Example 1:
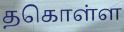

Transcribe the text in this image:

தகொள்ள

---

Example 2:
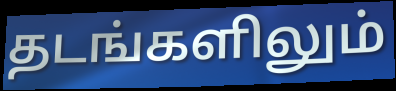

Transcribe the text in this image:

தடங்களிலும்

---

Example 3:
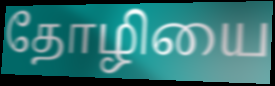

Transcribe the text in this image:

தோழியை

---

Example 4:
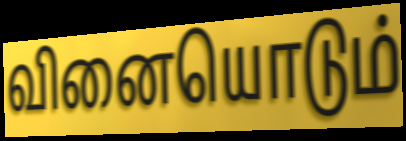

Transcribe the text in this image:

வினையொடும்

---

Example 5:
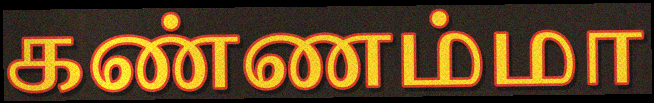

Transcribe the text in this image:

கண்ணம்மா